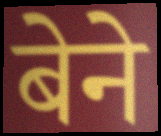
बेने